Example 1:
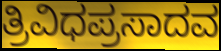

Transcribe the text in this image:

ತ್ರಿವಿಧಪ್ರಸಾದವ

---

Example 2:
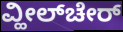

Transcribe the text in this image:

ವ್ಹೀಲ್‌ಚೇರ್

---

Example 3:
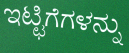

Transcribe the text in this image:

ಇಟ್ಟಿಗೆಗಳನ್ನು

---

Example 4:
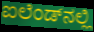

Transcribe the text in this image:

ಐಲೆಂಡ್‌ನಲ್ಲಿ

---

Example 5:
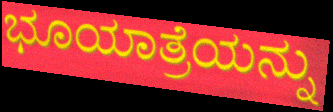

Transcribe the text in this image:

ಭೂಯಾತ್ರೆಯನ್ನು